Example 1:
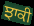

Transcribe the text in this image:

ਝਾਕੀ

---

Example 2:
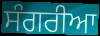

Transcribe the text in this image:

ਸੰਗਰੀਆ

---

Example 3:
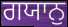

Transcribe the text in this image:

ਗਯਾਨੁ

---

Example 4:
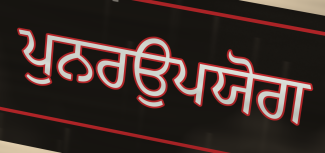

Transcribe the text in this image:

ਪੁਨਰਉਪਯੋਗ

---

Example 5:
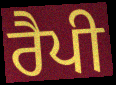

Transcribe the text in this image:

ਰੈਪੀ